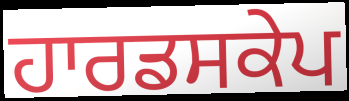
ਹਾਰਡਸਕੇਪ